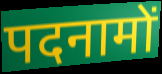
पदनामों